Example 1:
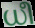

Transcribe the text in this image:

ധീ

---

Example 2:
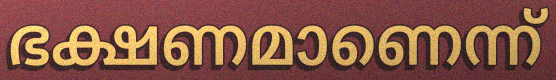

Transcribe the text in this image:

ഭക്ഷണമാണെന്ന്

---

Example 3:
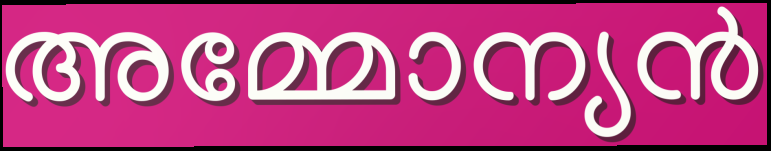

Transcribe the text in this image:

അമ്മോന്യൻ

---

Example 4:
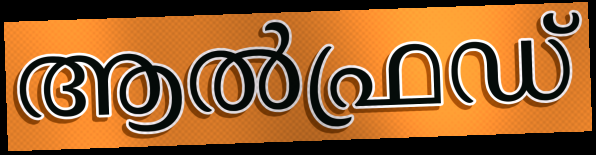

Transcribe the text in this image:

ആൽഫ്രഡ്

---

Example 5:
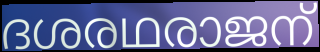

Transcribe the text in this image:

ദശരഥരാജന്